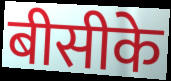
बीसीके